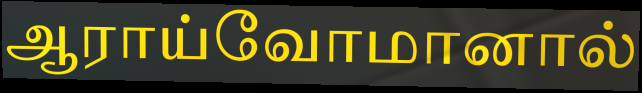
ஆராய்வோமானால்